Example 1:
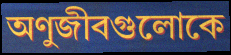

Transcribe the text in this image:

অণুজীবগুলোকে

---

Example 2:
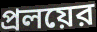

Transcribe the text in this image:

প্রলয়ের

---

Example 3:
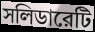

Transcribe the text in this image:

সলিডারেটি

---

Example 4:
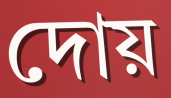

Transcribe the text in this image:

দোয়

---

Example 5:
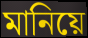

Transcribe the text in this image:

মানিয়ে